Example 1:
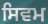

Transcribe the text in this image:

ਸਿਵਮ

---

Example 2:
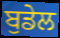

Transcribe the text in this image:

ਬੁਡੇਲ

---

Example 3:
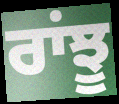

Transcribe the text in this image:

ਰਾਂਝੂ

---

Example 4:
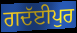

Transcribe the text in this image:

ਗਦੱਈਪੁਰ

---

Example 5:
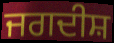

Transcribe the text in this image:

ਜਗਦੀਸ਼